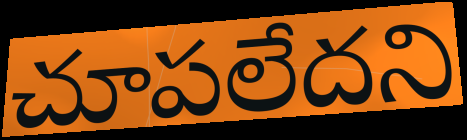
చూపలేదని